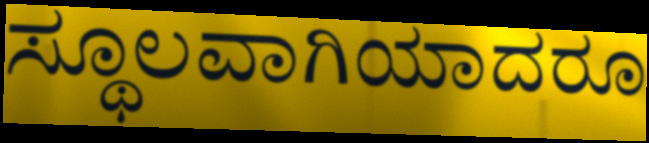
ಸ್ಥೂಲವಾಗಿಯಾದರೂ